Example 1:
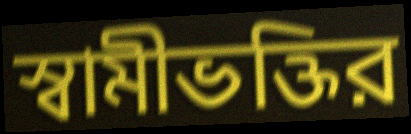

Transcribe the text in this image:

স্বামীভক্তির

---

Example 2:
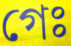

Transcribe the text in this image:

গেঃ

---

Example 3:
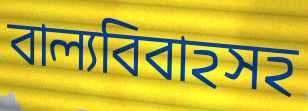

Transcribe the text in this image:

বাল্যবিবাহসহ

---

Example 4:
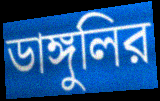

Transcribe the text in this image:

ডাঙ্গুলির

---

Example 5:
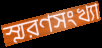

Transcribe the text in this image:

স্মরণসংখ্যা